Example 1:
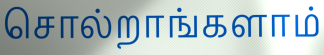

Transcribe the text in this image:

சொல்றாங்களாம்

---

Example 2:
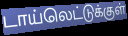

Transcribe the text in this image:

டாய்லெட்டுக்குள்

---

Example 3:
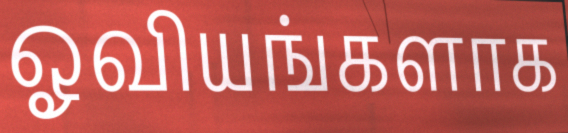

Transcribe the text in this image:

ஓவியங்களாக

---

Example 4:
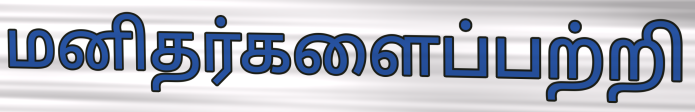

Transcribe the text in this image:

மனிதர்களைப்பற்றி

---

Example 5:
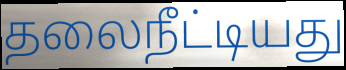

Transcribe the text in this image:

தலைநீட்டியது